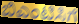
ಬಿಎಂಟಿಸಿಗೆ